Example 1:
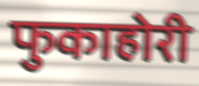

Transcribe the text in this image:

फुकाहोरी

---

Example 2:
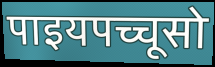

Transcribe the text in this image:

पाइयपच्चूसो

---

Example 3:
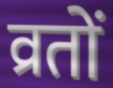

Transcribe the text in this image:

व्रतों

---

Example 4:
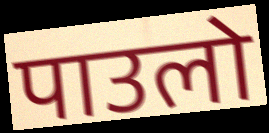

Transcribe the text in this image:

पाउलो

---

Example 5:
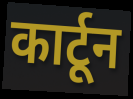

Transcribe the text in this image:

कार्टून